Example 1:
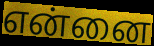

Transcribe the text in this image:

என்னை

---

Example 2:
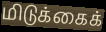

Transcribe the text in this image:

மிடுக்கைக்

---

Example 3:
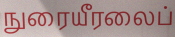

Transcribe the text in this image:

நுரையீரலைப்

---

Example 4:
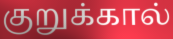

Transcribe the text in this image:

குறுக்கால்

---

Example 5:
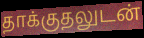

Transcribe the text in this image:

தாக்குதலுடன்